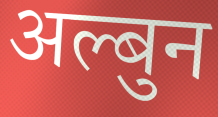
अल्बुन